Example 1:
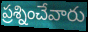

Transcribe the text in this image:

ప్రశ్నించేవారు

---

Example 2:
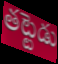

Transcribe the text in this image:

తట్టెడు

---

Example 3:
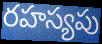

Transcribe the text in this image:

రహస్యపు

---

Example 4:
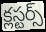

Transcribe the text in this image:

క్లస్టర్స్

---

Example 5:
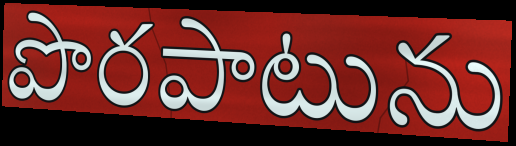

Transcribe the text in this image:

పొరపాటును